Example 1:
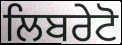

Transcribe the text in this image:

ਲਿਬਰੇਟੋ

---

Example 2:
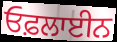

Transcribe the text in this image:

ਓਫ਼ਲਾਈਨ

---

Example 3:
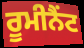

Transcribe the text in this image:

ਰੂਮੀਨੈਂਟ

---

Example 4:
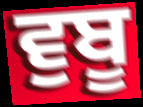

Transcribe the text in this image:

ਵੁਬੂ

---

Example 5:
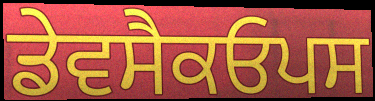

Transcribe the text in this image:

ਡੇਵਸੈਕਓਪਸ